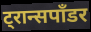
ट्रान्सपाँडर